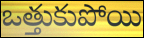
ఒత్తుకుపోయి